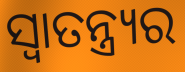
ସ୍ୱାତନ୍ତ୍ର୍ୟର